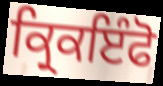
ਕ੍ਰਿਕਇੰਫੋ